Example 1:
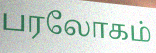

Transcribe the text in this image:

பரலோகம்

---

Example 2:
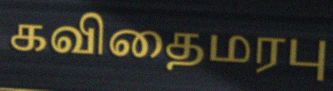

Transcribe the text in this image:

கவிதைமரபு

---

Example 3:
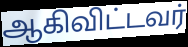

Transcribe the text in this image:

ஆகிவிட்டவர்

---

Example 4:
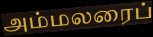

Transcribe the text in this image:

அம்மலரைப்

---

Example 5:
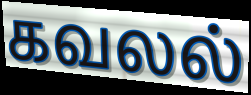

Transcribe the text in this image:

கவலல்